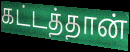
கட்டத்தான்